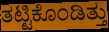
ತಟ್ಟಿಕೊಂಡಿತ್ತು